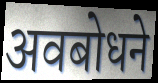
अवबोधने